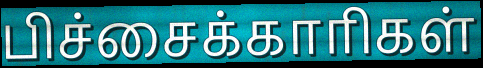
பிச்சைக்காரிகள்